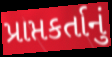
પ્રાપ્તકર્તાનું